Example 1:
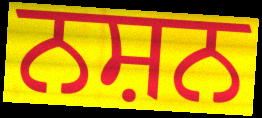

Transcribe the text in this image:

ਨਸ਼ਨ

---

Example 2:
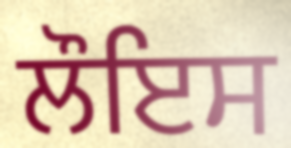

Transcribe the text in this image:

ਲੌਇਸ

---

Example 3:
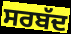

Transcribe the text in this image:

ਸਰਬੱਦ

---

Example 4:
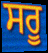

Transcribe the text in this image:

ਸਰੂ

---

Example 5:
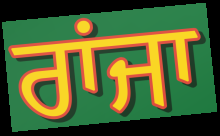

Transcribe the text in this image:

ਰਾਂਜਾ